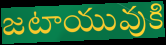
జటాయువుకి